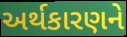
અર્થકારણને